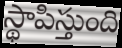
స్థాపిస్తుంది